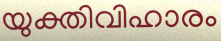
യുക്തിവിഹാരം